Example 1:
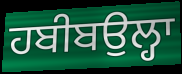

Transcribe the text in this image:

ਹਬੀਬਉਲ੍ਹਾ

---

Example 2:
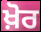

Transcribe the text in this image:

ਖ਼ੋਰ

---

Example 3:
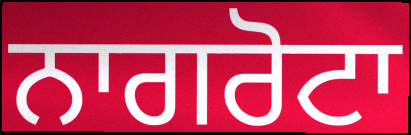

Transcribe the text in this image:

ਨਾਗਰੋਟਾ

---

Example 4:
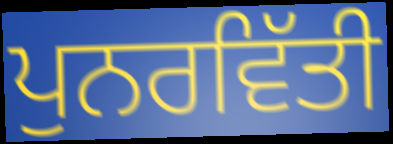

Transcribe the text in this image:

ਪੁਨਰਵਿੱਤੀ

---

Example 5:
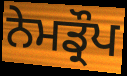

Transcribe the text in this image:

ਨੇਮਡ੍ਰੌਪ